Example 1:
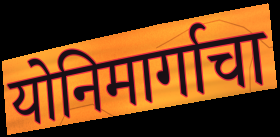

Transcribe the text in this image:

योनिमार्गाचा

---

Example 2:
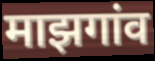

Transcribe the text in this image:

माझगांव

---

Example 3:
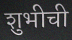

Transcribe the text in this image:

शुभीची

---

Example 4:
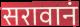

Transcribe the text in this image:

सरावानं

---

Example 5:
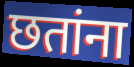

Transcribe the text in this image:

छतांना